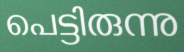
പെട്ടിരുന്നു